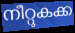
നീറ്റുകക്ക